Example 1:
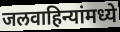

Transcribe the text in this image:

जलवाहिन्यांमध्ये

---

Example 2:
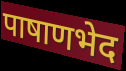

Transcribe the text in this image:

पाषाणभेद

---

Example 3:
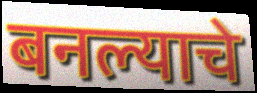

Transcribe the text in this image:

बनल्याचे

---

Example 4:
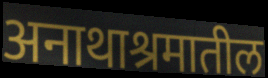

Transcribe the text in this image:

अनाथाश्रमातील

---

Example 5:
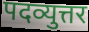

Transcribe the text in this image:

पदव्युत्तर